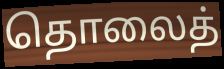
தொலைத்